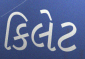
કિલેટ